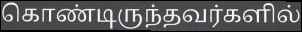
கொண்டிருந்தவர்களில்